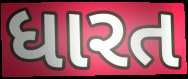
ધારત